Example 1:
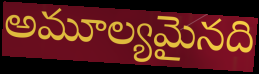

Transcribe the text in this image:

అమూల్యమైనది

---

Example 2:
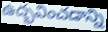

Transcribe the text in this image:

ఉద్భవించడాన్ని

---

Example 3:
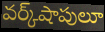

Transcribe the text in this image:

వర్క్‌షాపులూ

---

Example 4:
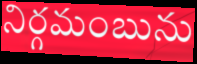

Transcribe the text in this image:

నిర్గమంబును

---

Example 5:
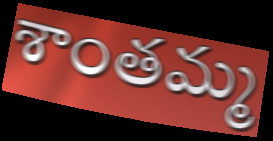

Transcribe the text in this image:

శాంతమ్మ